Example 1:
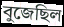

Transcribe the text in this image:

বুজেছিল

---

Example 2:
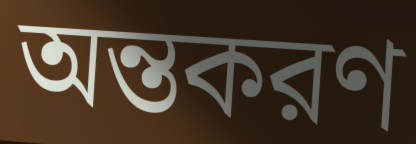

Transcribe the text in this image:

অন্তকরণ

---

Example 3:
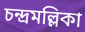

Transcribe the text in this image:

চন্দ্রমল্লিকা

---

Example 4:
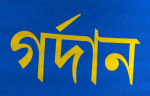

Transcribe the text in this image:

গর্দান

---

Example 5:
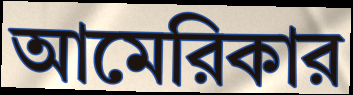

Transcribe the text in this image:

আমেরিকার